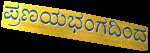
ಪ್ರಣಯಭಂಗದಿಂದ